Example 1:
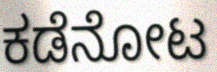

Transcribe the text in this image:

ಕಡೆನೋಟ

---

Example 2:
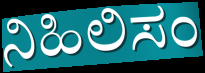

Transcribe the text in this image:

ನಿಹಿಲಿಸಂ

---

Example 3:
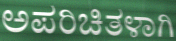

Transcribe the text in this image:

ಅಪರಿಚಿತಳಾಗಿ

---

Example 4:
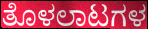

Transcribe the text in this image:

ತೊಳಲಾಟಗಳ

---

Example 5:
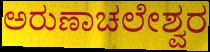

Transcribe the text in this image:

ಅರುಣಾಚಲೇಶ್ವರ